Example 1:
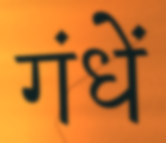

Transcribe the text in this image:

गंधें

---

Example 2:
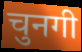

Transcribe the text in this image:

चुनगी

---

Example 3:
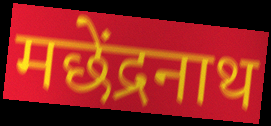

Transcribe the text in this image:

मछेंद्रनाथ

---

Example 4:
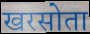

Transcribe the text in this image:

खरसोता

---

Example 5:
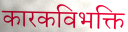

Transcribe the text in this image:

कारकविभक्ति